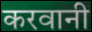
करवानी